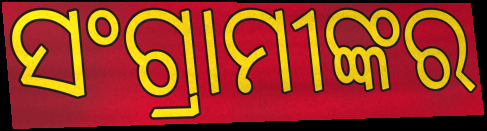
ସଂଗ୍ରାମୀଙ୍କର